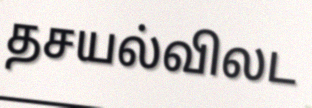
தசயல்விலட